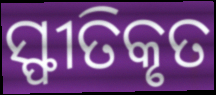
ସ୍ଫୀତିକୃତ